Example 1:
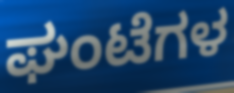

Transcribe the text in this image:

ಘಂಟೆಗಳ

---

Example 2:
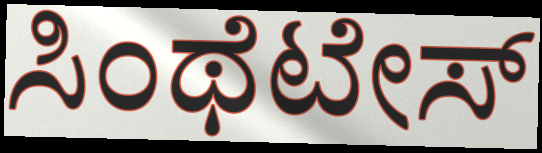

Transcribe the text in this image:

ಸಿಂಥೆಟೇಸ್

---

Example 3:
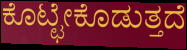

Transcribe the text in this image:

ಕೊಟ್ಟೇಕೊಡುತ್ತದೆ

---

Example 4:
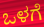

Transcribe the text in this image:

ಒಳಗೆ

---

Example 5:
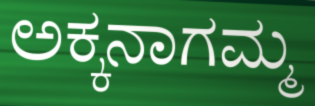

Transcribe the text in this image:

ಅಕ್ಕನಾಗಮ್ಮ